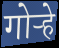
गोऱ्हे